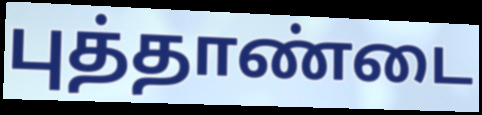
புத்தாண்டை